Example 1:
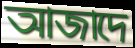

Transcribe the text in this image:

আজাদে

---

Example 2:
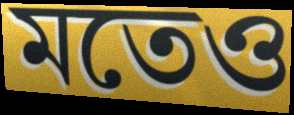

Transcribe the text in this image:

মতেও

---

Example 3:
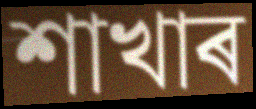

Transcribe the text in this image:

শাখাৰ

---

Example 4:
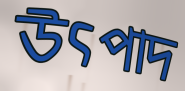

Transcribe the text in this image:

উৎপাদ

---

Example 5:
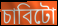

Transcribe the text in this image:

চাবিটো